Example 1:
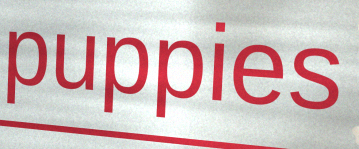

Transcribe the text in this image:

puppies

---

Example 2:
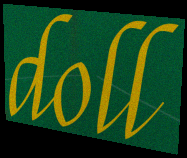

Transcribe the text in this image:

doll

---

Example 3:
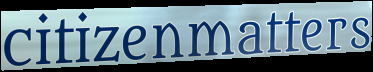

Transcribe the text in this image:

citizenmatters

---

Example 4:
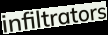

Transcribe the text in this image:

infiltrators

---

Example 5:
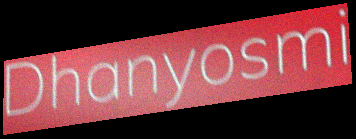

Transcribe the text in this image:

Dhanyosmi